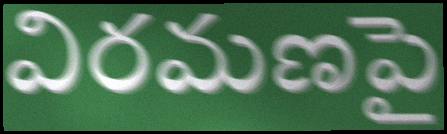
విరమణపై